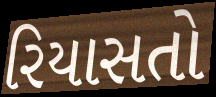
રિયાસતો